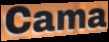
Cama